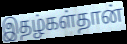
இதழ்கள்தான்